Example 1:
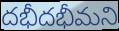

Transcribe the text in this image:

దభీదభీమని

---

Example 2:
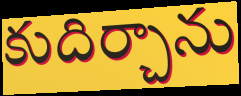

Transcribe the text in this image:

కుదిర్చాను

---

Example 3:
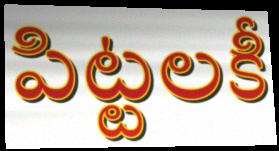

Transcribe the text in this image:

పిట్టలకీ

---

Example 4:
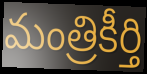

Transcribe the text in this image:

మంత్రికీర్తి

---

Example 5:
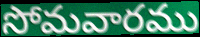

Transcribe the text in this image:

సోమవారము